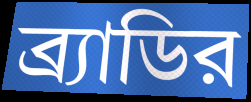
ব্র্যাডির